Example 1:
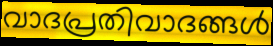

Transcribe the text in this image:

വാദപ്രതിവാദങ്ങൾ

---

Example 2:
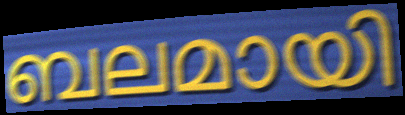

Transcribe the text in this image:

ബലമായി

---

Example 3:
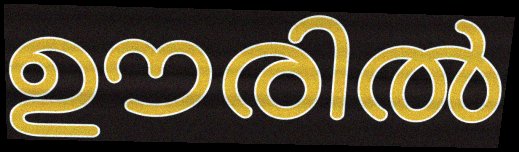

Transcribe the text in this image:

ഊരിൽ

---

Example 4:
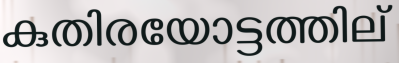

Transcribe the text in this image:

കുതിരയോട്ടത്തില്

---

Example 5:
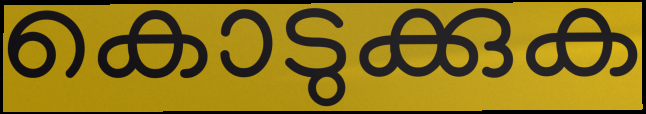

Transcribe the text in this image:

കൊടുക്കുക